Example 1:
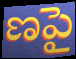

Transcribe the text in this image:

ణపై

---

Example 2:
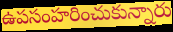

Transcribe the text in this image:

ఉపసంహరించుకున్నారు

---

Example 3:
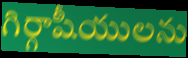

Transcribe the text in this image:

గిర్గాషీయులను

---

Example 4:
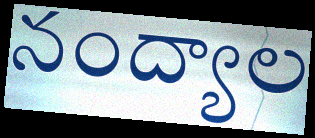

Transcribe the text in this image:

నంద్యాల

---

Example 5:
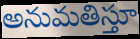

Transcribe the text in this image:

అనుమతిస్తూ